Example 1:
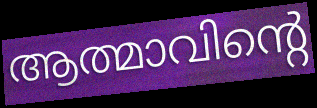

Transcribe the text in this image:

ആത്മാവിന്റെ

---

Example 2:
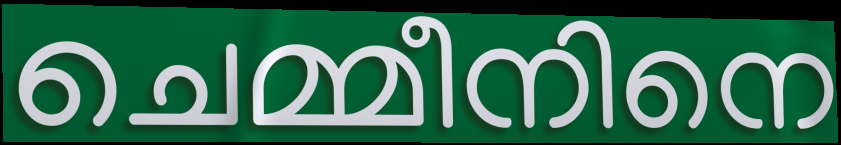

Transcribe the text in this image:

ചെമ്മീനിനെ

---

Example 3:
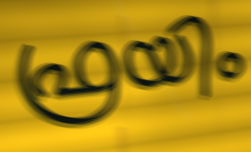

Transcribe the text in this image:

ഫ്രയിം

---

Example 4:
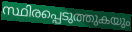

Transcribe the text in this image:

സ്ഥിരപ്പെടുത്തുകയും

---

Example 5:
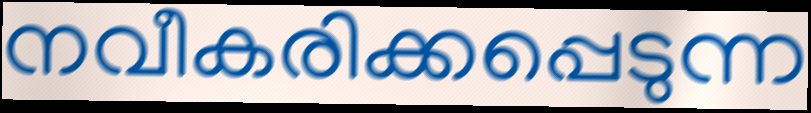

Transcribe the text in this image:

നവീകരിക്കപ്പെടുന്ന